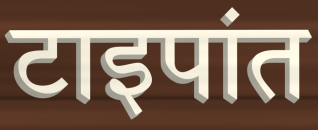
टाइपांत